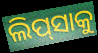
ଲିପ୍‍ସାକୁ